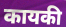
कायकी